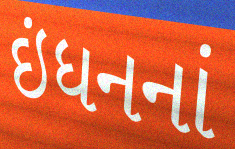
ઇંધનનાં